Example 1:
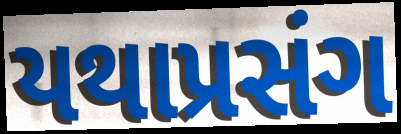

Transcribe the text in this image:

યથાપ્રસંગ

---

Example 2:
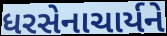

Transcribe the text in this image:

ધરસેનાચાર્યને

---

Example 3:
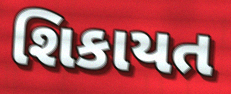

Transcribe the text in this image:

શિકાયત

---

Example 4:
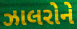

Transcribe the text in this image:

ઝાલરોને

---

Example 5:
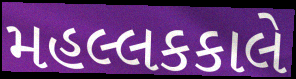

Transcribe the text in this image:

મહલ્લકકાલે